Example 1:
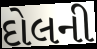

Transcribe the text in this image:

દોલની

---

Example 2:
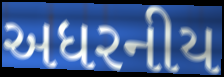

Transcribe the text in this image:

અધરનીય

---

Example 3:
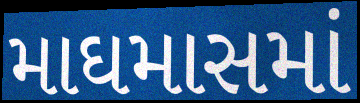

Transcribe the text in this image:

માઘમાસમાં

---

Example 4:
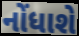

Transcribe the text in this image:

નોંધાશે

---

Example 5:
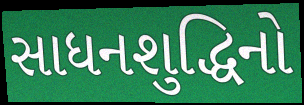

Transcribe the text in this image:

સાધનશુદ્ધિનો